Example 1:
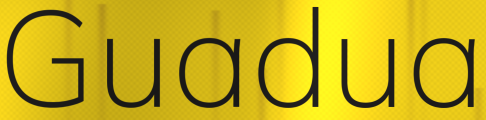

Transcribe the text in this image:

Guadua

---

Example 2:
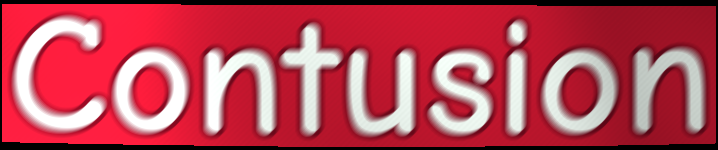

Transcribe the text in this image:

Contusion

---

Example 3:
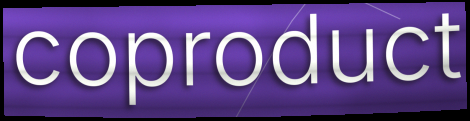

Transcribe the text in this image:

coproduct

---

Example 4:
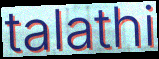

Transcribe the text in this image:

talathi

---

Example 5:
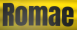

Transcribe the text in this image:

Romae